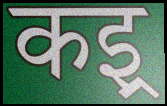
कइ्र